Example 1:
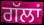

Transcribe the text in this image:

ਗੱਲਾਂ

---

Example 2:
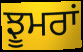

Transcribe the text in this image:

ਝੂਮਰਾਂ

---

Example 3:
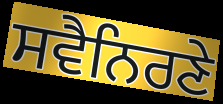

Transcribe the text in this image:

ਸਵੈਨਿਰਣੇ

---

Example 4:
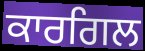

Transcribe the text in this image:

ਕਾਰਗਿਲ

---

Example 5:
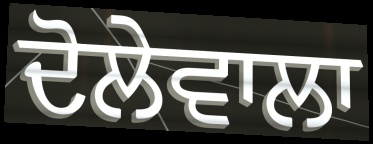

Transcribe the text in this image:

ਦੋਲੇਵਾਲਾ